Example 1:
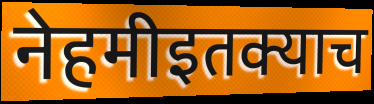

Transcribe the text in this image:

नेहमीइतक्याच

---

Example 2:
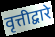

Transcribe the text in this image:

वृत्तीद्वारे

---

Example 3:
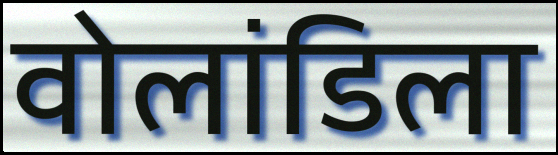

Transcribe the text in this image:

वोलांडिला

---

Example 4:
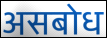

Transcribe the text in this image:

असबोध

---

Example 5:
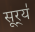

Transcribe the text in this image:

सूर्य॑